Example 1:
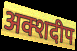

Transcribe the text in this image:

अक्शदीप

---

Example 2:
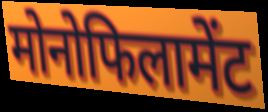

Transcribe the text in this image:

मोनोफिलामेंट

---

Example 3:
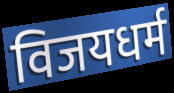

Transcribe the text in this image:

विजयधर्म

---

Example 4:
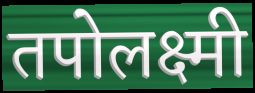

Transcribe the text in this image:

तपोलक्ष्मी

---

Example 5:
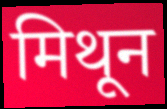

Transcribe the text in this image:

मिथून